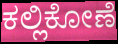
ಕಲ್ಲಿಕೋಣೆ